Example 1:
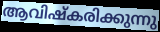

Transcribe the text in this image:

ആവിഷ്കരിക്കുന്നു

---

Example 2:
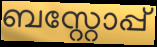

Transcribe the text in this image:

ബസ്റ്റോപ്പ്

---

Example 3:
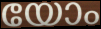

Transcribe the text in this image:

യോം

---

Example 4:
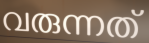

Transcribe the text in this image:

വരുന്നത്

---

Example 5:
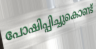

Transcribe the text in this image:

പോഷിപ്പിച്ചുകൊണ്ട്